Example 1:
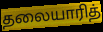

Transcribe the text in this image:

தலையாரித்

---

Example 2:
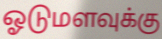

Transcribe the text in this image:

ஓடுமளவுக்கு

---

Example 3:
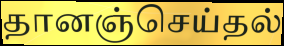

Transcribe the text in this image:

தானஞ்செய்தல்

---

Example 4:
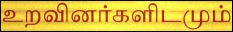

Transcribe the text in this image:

உறவினர்களிடமும்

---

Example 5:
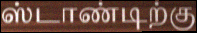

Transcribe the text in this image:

ஸ்டாண்டிற்கு